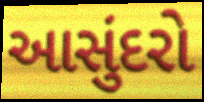
આસુંદરો